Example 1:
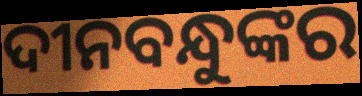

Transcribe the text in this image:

ଦୀନବନ୍ଧୁଙ୍କର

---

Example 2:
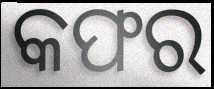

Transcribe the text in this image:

କଫର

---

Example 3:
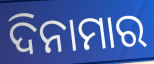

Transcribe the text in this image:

ଦିନାମାର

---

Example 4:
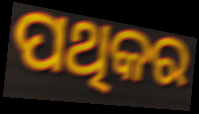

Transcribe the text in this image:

ପଥିକର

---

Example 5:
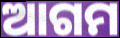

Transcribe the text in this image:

ଆଗମ